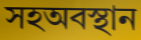
সহঅবস্থান